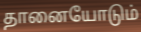
தானையோடும்